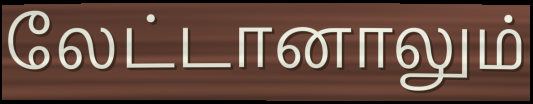
லேட்டானாலும்